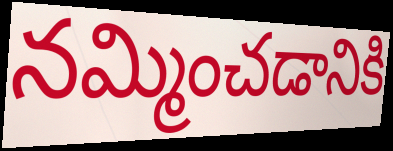
నమ్మించడానికి